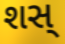
શસ્